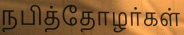
நபித்தோழர்கள்